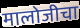
मालोजीचा